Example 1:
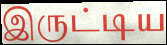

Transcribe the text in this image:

இருட்டிய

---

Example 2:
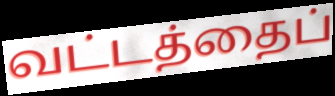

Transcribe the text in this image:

வட்டத்தைப்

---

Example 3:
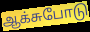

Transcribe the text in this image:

ஆக்சுபோடு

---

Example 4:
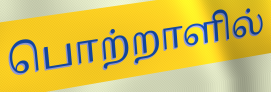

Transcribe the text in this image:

பொற்றாளில்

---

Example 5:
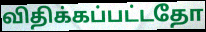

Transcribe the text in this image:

விதிக்கப்பட்டதோ